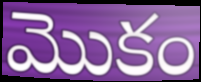
మొకం